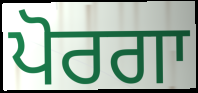
ਪੋਰਗਾ